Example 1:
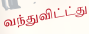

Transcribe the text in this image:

வந்துவிட்ட்து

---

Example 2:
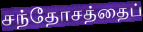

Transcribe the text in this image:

சந்தோசத்தைப்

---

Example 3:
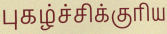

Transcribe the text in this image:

புகழ்ச்சிக்குரிய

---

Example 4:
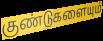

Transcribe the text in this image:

குண்டுகளையும்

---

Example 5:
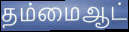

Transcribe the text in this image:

தம்மைஆட்